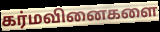
கர்மவினைகளை